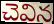
చెవిన